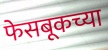
फेसबूकच्या